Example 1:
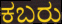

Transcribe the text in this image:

ಕಬರು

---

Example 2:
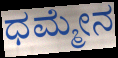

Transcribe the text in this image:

ಧಮ್ಮೇನ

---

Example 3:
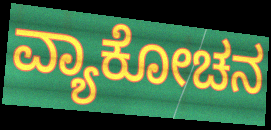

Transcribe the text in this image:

ವ್ಯಾಕೋಚನ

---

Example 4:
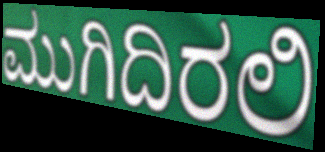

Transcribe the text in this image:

ಮುಗಿದಿರಲಿ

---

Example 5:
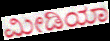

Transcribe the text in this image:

ಮೀಡಿಯಾ